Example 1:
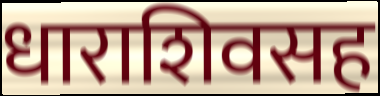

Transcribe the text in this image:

धाराशिवसह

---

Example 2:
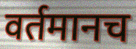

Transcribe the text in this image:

वर्तमानच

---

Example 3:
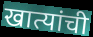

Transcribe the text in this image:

खात्यांची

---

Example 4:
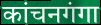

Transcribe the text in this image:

कांचनगंगा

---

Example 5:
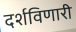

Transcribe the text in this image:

दर्शविणारी